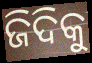
ଜିଦିକୁ